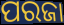
ପରଜା